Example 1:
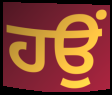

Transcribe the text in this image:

ਹਉਂ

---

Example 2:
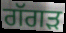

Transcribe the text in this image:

ਗੱਗੜ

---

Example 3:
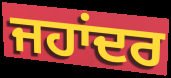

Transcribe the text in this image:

ਜਹਾਂਦਰ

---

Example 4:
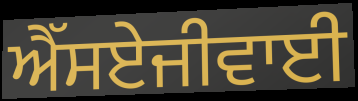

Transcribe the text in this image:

ਐੱਸਏਜੀਵਾਈ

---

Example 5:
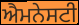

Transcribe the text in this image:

ਐਮਨੇਸਟੀ